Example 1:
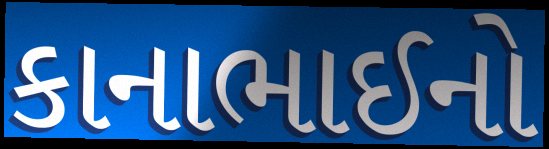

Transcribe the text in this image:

કાનાભાઈનો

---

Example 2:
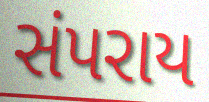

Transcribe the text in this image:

સંપરાય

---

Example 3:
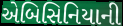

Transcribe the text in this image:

એબિસિનિયાની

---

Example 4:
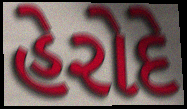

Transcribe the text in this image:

હેરોદે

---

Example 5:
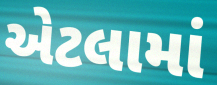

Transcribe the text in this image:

એટલામાં